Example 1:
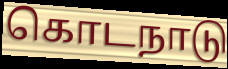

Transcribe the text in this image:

கொடநாடு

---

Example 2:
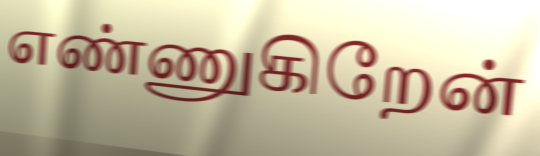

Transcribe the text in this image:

எண்ணுகிறேன்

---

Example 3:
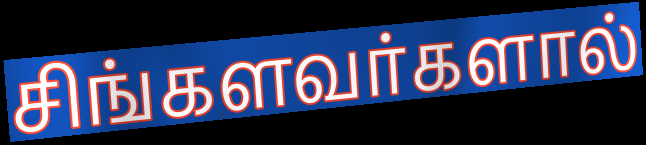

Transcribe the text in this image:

சிங்களவர்களால்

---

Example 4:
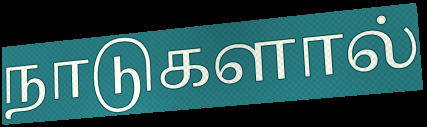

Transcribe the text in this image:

நாடுகளால்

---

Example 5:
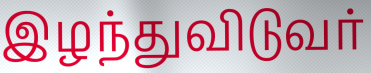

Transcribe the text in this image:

இழந்துவிடுவர்